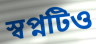
স্বপ্নটিও